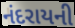
નંદરાયની